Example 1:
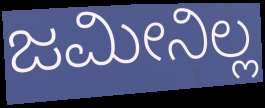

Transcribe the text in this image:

ಜಮೀನಿಲ್ಲ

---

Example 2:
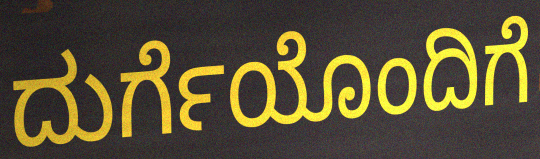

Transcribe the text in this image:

ದುರ್ಗೆಯೊಂದಿಗೆ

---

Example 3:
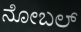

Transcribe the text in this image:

ನೋಬಲ್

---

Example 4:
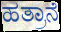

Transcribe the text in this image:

ಹತ್ರಾನೆ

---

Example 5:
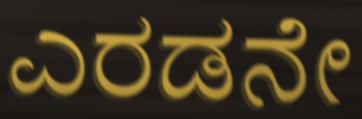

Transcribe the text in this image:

ಎರಡನೇ